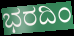
ಭರದಿಂ